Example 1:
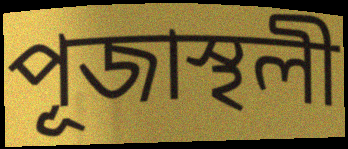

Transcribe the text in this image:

পূজাস্থলী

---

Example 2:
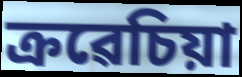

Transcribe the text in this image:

ক্ৰৱেচিয়া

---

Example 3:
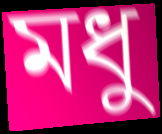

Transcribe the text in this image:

মধু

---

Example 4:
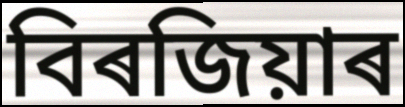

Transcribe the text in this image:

বিৰজিয়াৰ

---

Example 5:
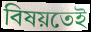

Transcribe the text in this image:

বিষয়তেই